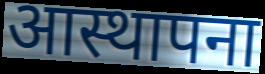
आस्थापना